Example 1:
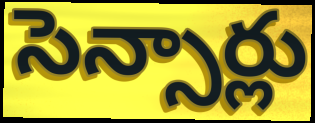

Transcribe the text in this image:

సెన్సార్లు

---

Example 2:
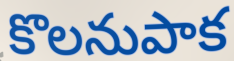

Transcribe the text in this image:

కొలనుపాక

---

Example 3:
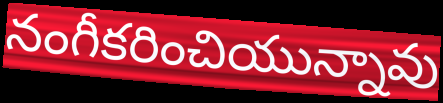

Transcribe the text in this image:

నంగీకరించియున్నావు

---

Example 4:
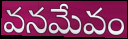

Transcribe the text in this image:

వనమేవం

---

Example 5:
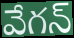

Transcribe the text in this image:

వేగన్